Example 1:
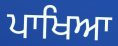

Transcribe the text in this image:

ਪਾਖਿਆ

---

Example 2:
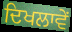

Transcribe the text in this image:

ਦਿਖਲਾਵੇਂ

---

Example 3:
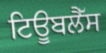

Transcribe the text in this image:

ਟਿਊਬਲੈੱਸ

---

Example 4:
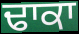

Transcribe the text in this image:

ਢਾਕਾ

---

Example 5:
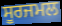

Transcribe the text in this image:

ਸੂਰਜਮਲ